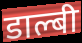
डाल्बी